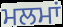
ਮਲਮਾਂ